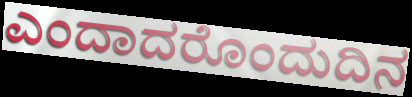
ಎಂದಾದರೊಂದುದಿನ